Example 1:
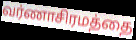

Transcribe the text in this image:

வர்ணாசிரமத்தை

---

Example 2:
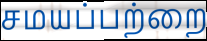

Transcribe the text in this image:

சமயப்பற்றை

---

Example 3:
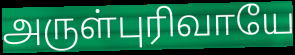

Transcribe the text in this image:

அருள்புரிவாயே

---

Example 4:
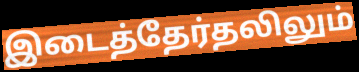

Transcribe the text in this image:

இடைத்தேர்தலிலும்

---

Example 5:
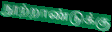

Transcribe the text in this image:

நூற்றாண்டுக்கு